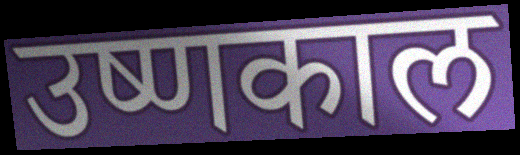
उष्णकाल